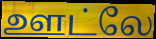
ஊட்லே